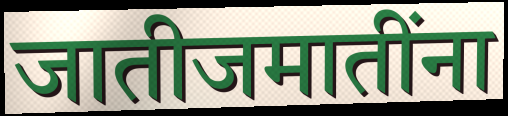
जातीजमातींना